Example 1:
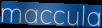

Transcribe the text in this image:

maccula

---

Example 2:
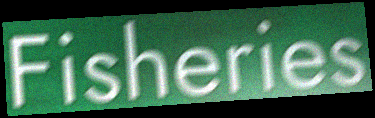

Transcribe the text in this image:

Fisheries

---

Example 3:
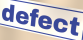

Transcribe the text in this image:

defect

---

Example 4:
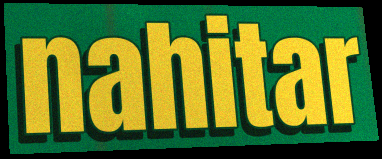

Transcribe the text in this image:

nahitar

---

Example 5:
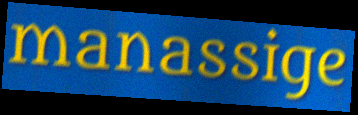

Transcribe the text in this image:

manassige